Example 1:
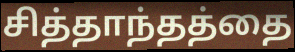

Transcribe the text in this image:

சித்தாந்தத்தை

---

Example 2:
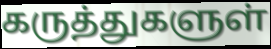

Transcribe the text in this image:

கருத்துகளுள்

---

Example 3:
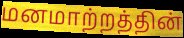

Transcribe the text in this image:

மனமாற்றத்தின்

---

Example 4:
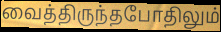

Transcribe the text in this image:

வைத்திருந்தபோதிலும்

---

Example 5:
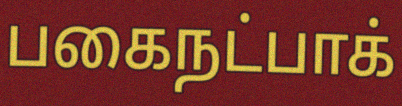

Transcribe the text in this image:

பகைநட்பாக்